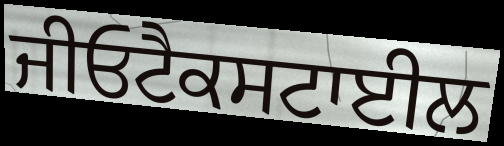
ਜੀਓਟੈਕਸਟਾਈਲ